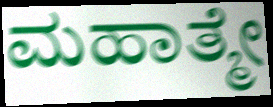
ಮಹಾತ್ಮೇ